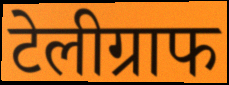
टेलीग्राफ